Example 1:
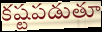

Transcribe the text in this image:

కష్టపడుతూ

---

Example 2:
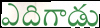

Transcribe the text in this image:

ఎదిగాడు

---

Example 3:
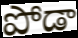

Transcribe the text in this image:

పోడా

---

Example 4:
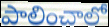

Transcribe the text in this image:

పాలించాలో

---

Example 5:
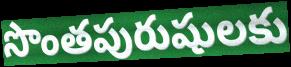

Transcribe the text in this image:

సొంతపురుషులకు